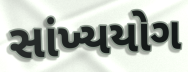
સાંખ્યયોગ